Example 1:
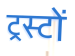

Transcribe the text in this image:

ट्रस्टों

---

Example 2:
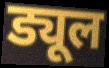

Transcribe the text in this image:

ड्यूल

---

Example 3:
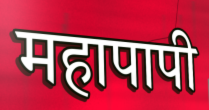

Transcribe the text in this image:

महापापी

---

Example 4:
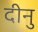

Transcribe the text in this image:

दीनु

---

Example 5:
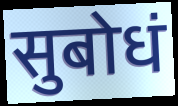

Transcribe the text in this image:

सुबोधं